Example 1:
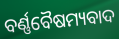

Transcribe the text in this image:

ବର୍ଣ୍ଣବୈଷମ୍ୟବାଦ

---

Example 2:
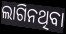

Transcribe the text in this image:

ଲାଗିନଥିବା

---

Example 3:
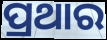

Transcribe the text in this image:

ପ୍ରଥାର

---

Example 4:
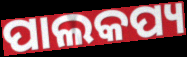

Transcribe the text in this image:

ପାଲକପ୍ୟ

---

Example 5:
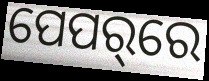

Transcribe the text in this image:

ପେପର୍‌ରେ